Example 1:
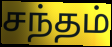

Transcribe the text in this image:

சந்தம்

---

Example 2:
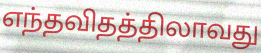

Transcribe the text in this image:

எந்தவிதத்திலாவது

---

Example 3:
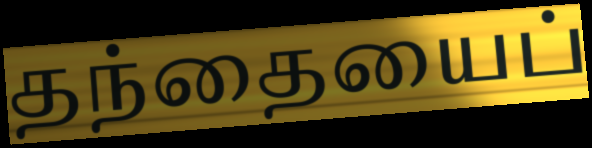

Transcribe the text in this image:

தந்தையைப்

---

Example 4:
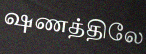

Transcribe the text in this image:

ஷணத்திலே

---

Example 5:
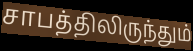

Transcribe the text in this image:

சாபத்திலிருந்தும்